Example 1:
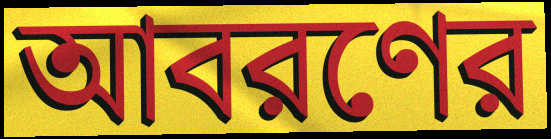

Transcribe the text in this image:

আবরণের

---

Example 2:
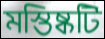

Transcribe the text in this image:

মস্তিষ্কটি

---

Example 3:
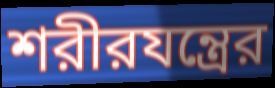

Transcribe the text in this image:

শরীরযন্ত্রের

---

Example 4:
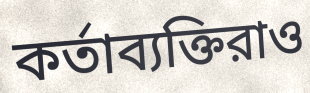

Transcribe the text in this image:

কর্তাব্যক্তিরাও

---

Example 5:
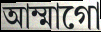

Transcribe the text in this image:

আম্মাগো